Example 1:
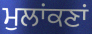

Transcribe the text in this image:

ਮੁਲਾਂਕਣਾਂ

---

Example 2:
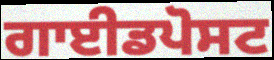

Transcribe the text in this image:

ਗਾਈਡਪੋਸਟ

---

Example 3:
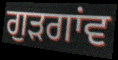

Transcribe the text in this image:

ਗੁਡ਼ਗਾਂਵ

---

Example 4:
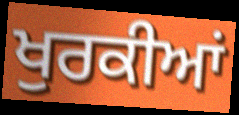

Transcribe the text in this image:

ਖੁਰਕੀਆਂ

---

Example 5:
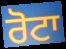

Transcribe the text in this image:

ਰੋਟਾ